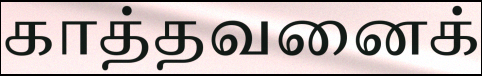
காத்தவனைக்